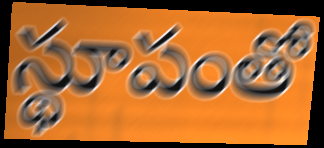
స్థూపంతో